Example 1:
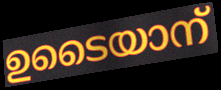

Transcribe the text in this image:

ഉടൈയാന്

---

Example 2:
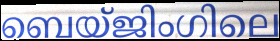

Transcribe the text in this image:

ബെയ്ജിംഗിലെ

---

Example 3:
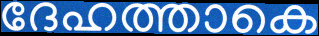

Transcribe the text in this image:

ദേഹത്താകെ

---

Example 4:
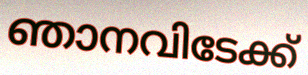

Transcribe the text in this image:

ഞാനവിടേക്ക്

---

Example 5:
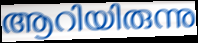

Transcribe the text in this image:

ആറിയിരുന്നു